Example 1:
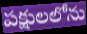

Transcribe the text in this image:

పక్షులలోను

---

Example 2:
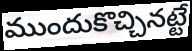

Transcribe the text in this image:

ముందుకొచ్చినట్టే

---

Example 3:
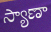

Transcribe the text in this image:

స్యాణా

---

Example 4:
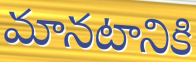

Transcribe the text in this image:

మానటానికి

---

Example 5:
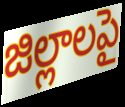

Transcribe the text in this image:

జిల్లాలపై